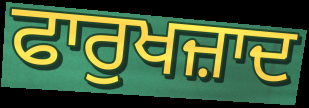
ਫਾਰੁਖਜ਼ਾਦ